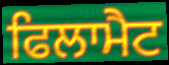
ਫਿਲਾਮੈਟ